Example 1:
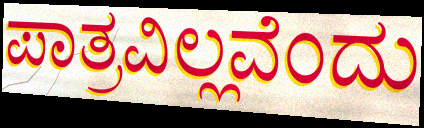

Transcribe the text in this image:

ಪಾತ್ರವಿಲ್ಲವೆಂದು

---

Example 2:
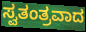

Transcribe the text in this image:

ಸ್ವತಂತ್ರವಾದ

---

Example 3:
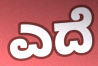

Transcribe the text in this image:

ಎದೆ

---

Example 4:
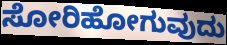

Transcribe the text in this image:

ಸೋರಿಹೋಗುವುದು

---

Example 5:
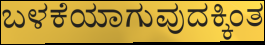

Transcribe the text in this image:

ಬಳಕೆಯಾಗುವುದಕ್ಕಿಂತ